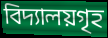
বিদ্যালয়গৃহ